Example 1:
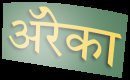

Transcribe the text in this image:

ॲरेका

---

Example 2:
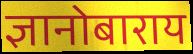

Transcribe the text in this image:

ज्ञानोबाराय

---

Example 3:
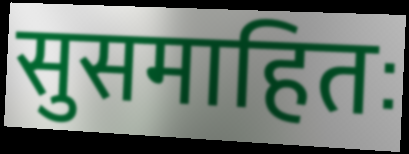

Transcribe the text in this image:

सुसमाहितः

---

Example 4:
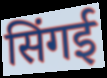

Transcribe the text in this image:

सिंगई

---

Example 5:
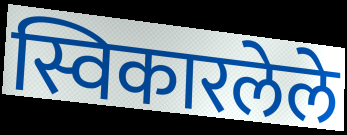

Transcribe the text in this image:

स्विकारलेले